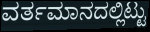
ವರ್ತಮಾನದಲ್ಲಿಟ್ಟು